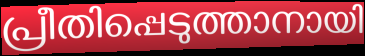
പ്രീതിപ്പെടുത്താനായി